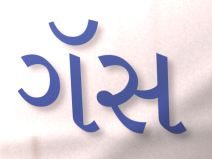
ગૅસ